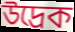
উদ্রেক